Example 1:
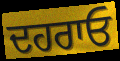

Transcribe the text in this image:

ਦਹਰਾਓ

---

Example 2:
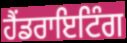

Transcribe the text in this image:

ਹੈਂਡਰਾਇਟਿੰਗ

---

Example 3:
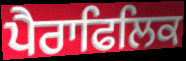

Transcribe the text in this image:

ਪੈਰਾਫਿਲਿਕ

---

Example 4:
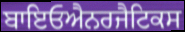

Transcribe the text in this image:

ਬਾਇਓਐਨਰਜੈਟਿਕਸ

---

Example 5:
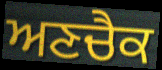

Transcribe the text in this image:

ਅਣਚੈਕ